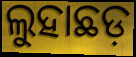
ଲୁହାଛଡ଼